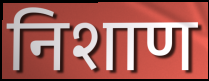
निशाण